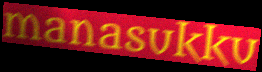
manasukku